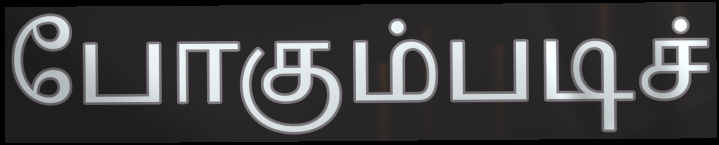
போகும்படிச்